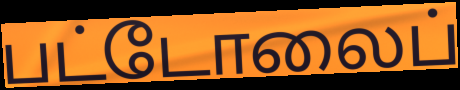
பட்டோலைப்